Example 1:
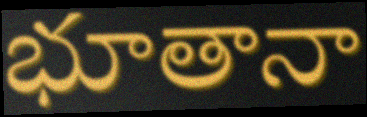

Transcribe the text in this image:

భూతానా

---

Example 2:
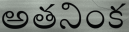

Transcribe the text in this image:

అతనింక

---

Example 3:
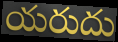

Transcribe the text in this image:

యరుదు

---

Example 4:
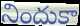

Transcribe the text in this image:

నిందుకా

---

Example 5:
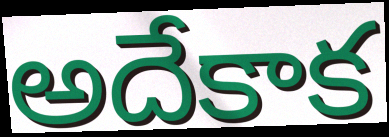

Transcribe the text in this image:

అదేకాక